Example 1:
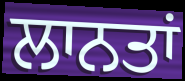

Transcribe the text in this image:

ਲਾਨਤਾਂ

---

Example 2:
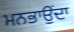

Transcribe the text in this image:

ਮਨਭਾਉਂਦਾ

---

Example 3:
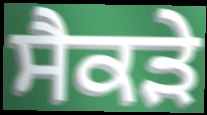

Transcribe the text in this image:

ਸੈਕੜੇ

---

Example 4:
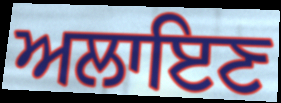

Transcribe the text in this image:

ਅਲਾਇਣ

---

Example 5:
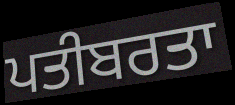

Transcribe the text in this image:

ਪਤੀਬਰਤਾ